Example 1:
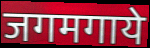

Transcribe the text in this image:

जगमगाये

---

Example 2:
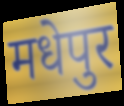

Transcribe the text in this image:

मधेपुर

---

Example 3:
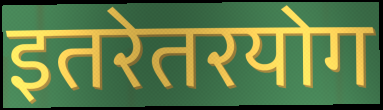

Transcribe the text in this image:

इतरेतरयोग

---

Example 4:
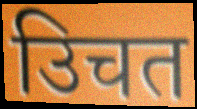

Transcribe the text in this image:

उिचत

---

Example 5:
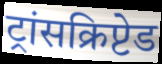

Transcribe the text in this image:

ट्रांसक्रिप्टेड